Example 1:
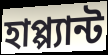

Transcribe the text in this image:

হাপ্প্যান্ট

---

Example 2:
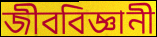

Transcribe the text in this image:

জীববিজ্ঞানী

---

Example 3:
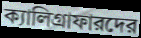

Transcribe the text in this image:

ক্যালিগ্রাফারদের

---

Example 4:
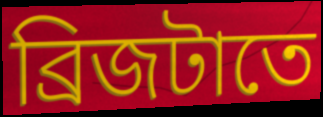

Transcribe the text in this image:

ব্রিজটাতে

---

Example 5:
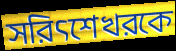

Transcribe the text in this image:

সরিৎশেখরকে